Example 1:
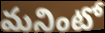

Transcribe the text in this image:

మనింటో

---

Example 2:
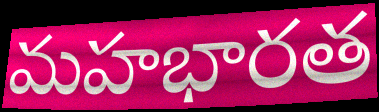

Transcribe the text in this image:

మహభారత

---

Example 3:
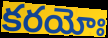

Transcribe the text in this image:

కరయోః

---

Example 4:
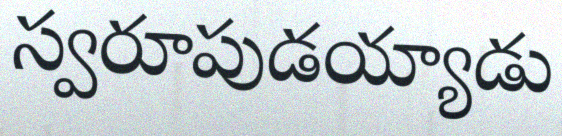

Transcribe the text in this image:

స్వరూపుడయ్యాడు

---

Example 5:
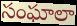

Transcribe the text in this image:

సంఘాలా